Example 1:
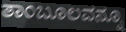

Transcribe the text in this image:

ತಾಂಬೂಲವನ್ನೂ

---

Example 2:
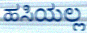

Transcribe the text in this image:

ಹಸಿಯಲ್ಲ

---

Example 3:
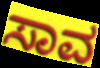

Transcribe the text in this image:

ಸಾವ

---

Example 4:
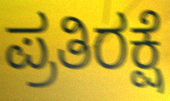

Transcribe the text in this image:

ಪ್ರತಿರಕ್ಷೆ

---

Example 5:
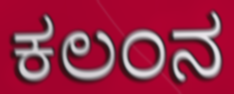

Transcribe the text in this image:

ಕಲಂನ